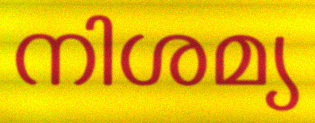
നിശമ്യ